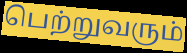
பெற்றுவரும்